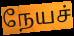
நேயச்